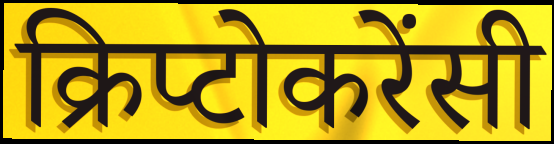
क्रिप्टोकरेंसी